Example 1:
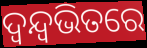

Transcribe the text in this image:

ଦ୍ୱନ୍ଦ୍ୱଭିତରେ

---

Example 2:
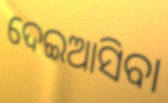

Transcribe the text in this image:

ଦେଇଆସିବା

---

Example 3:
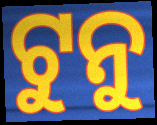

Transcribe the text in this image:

ଟୁନୁ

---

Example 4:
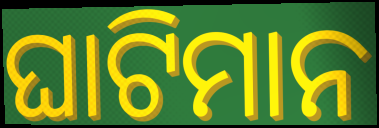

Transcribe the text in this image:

ଘାଟିମାନ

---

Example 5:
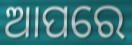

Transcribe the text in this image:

ଆପରେ